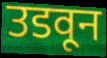
उडवून